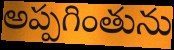
అప్పగింతును